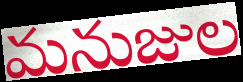
మనుజుల